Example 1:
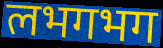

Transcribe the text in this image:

लभगभग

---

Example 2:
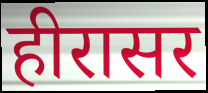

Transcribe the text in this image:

हीरासर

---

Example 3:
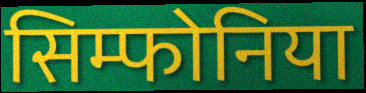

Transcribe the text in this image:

सिम्फोनिया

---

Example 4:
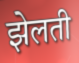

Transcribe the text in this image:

झेलती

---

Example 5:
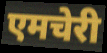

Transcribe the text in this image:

एमचेरी